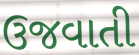
ઉજવાતી